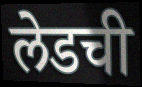
लेडची